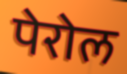
पेरोल